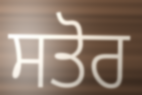
ਸਤੋਰ